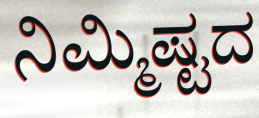
ನಿಮ್ಮಿಷ್ಟದ